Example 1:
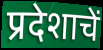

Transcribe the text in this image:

प्रदेशाचें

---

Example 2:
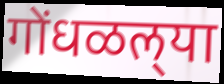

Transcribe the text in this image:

गोंधळल्या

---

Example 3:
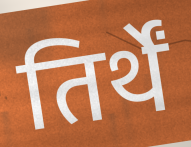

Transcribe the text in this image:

तिर्थें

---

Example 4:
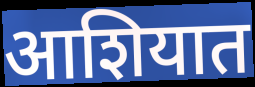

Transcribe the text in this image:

आशियात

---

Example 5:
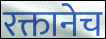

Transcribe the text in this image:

रक्तानेच